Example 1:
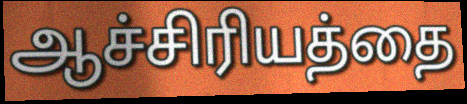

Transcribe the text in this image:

ஆச்சிரியத்தை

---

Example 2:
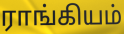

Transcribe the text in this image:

ராங்கியம்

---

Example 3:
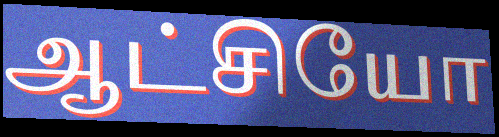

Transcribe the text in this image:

ஆட்சியோ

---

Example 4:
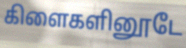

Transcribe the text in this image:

கிளைகளினூடே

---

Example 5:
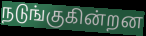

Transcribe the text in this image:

நடுங்குகின்றன